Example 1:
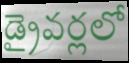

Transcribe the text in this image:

డ్రైవర్లలో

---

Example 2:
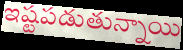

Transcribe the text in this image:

ఇష్టపడుతున్నాయి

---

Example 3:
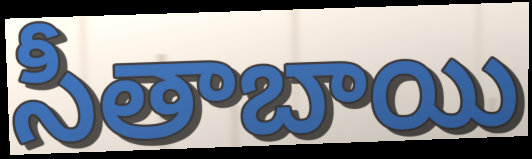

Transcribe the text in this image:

సీతాబాయి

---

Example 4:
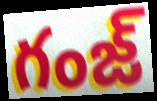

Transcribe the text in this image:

గంజ్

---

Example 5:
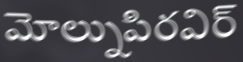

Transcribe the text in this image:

మోల్నుపిరవిర్